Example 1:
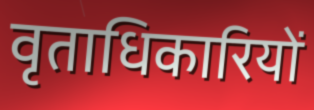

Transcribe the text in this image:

वृताधिकारियों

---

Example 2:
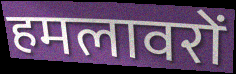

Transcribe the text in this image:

हमलावरों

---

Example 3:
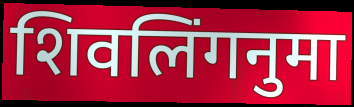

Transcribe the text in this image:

शिवलिंगनुमा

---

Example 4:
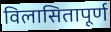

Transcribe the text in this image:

विलासितापूर्ण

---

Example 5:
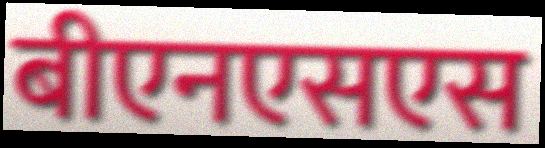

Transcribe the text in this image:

बीएनएसएस